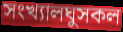
সংখ্যালঘুসকল